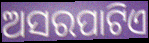
ଅସରପାଟିଏ